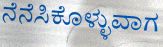
ನೆನೆಸಿಕೊಳ್ಳುವಾಗ